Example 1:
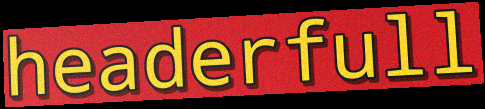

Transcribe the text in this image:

headerfull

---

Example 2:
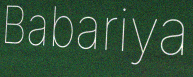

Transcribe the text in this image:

Babariya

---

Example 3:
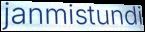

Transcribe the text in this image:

janmistundi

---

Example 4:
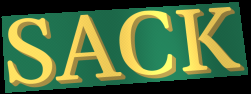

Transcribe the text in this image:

SACK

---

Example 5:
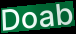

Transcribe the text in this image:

Doab